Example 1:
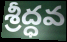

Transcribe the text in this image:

శ్రీద్ధవ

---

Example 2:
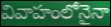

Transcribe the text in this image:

వివాహంలోనైనా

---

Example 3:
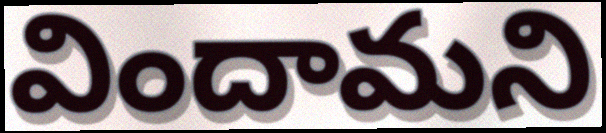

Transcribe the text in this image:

విందామని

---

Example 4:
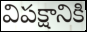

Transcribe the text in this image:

విపక్షానికి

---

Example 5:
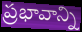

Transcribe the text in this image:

ప్రభావాన్ని